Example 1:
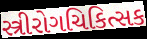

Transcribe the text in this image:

સ્ત્રીરોગચિકિત્સક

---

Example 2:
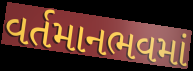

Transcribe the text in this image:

વર્તમાનભવમાં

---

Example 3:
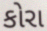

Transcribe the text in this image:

કોરા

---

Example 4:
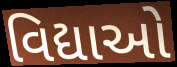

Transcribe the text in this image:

વિદ્યાઓ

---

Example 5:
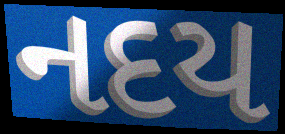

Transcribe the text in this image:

નદય